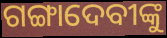
ଗଙ୍ଗାଦେବୀଙ୍କୁ